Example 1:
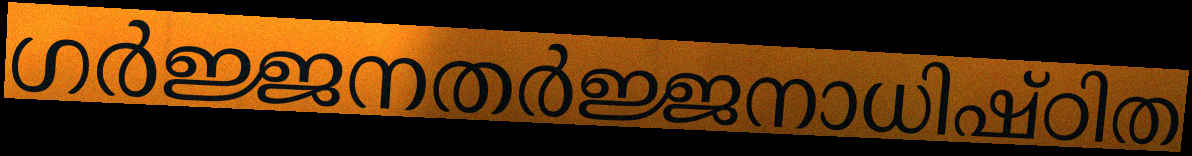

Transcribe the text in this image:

ഗർജ്ജനതർജ്ജനാധിഷ്ഠിത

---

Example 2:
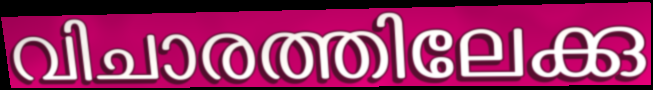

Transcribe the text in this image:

വിചാരത്തിലേക്കു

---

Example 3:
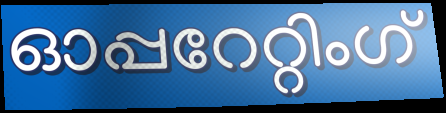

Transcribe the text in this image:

ഓപ്പറേറ്റിംഗ്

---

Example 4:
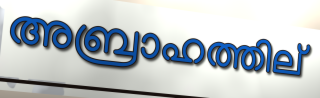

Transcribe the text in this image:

അബ്രാഹത്തില്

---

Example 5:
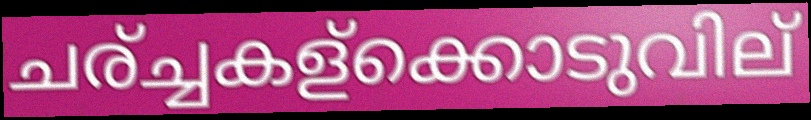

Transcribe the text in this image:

ചര്ച്ചകള്ക്കൊടുവില്